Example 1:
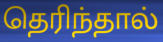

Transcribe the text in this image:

தெரிந்தால்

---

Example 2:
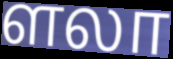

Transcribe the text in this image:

ளலா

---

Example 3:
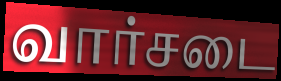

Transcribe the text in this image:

வார்சடை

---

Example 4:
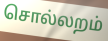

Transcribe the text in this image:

சொல்லறம்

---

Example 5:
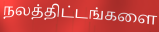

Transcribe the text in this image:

நலத்திட்டங்களை